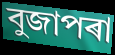
বুজাপৰা